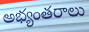
అభ్యంతరాలు